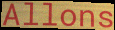
Allons